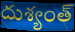
దుశ్యంత్